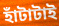
হাঁটাটাই